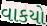
વાકયો